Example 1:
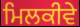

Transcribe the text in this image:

ਮਿਲਕੀਵੇ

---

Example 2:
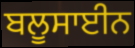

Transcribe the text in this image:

ਬਲੂਸਾਈਨ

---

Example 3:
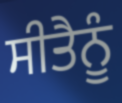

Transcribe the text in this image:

ਸੀਤੈਨੂੰ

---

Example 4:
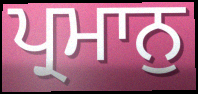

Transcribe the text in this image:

ਪ੍ਰਮਾਨੁ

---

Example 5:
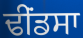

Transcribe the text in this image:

ਢੀੰਂਡਸਾ